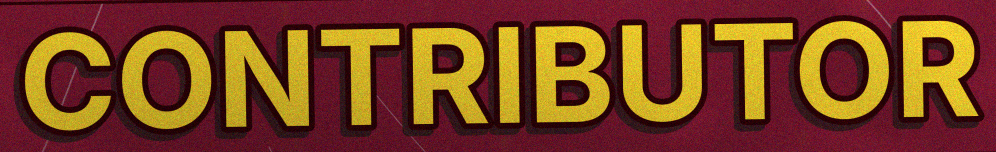
CONTRIBUTOR